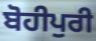
ਬੋਹੀਪੁਰੀ